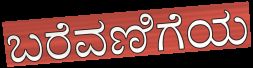
ಬರೆವಣಿಗೆಯ